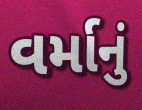
વર્માનું